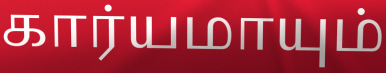
கார்யமாயும்